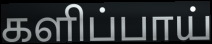
களிப்பாய்